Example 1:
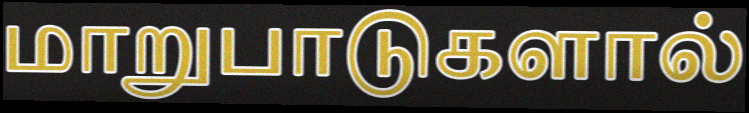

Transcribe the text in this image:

மாறுபாடுகளால்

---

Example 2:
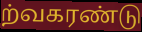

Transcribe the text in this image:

ற்வகரண்டு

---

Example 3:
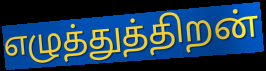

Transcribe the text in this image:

எழுத்துத்திறன்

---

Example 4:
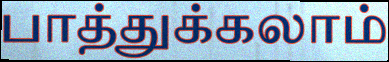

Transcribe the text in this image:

பாத்துக்கலாம்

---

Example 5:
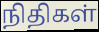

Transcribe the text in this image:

நிதிகள்